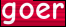
goer